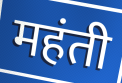
महंती